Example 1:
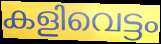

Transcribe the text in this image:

കളിവെട്ടം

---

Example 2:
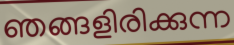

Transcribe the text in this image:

ഞങ്ങളിരിക്കുന്ന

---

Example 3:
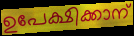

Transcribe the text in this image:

ഉപേക്ഷിക്കാന്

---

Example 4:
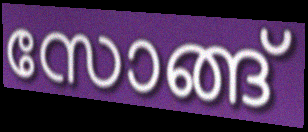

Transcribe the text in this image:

സോങ്ങ്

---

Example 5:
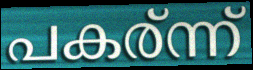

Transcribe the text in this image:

പകര്ന്ന്